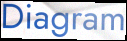
Diagram